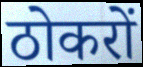
ठोकरों